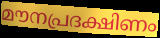
മൗനപ്രദക്ഷിണം